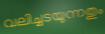
വലിച്ചടയുന്നതും